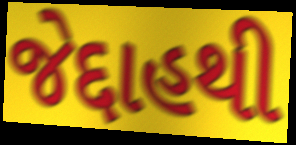
જેદ્દાહથી